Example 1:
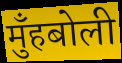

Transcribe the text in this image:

मुँहबोली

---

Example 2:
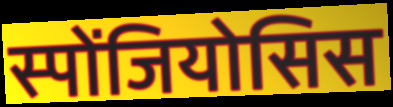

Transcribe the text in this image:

स्पोंजियोसिस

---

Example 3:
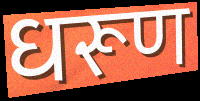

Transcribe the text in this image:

धरूण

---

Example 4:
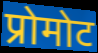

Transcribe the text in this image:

प्रोमोट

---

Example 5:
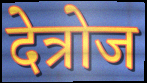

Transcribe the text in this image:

देत्रोज